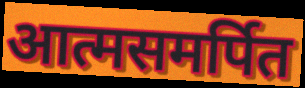
आत्मसमर्पित